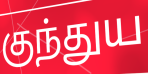
குந்துய